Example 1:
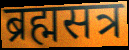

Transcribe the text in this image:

ब्रह्मसत्र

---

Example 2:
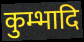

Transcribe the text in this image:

कुम्भादि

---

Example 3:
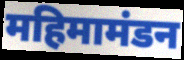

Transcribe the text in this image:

महिमामंडन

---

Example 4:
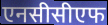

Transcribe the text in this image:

एनसीसीएफ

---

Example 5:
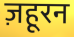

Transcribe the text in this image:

ज़हूरन